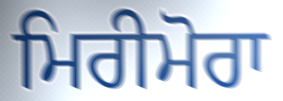
ਮਿਰੀਮੋਰਾ